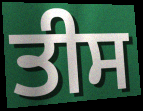
ਤੀਸ